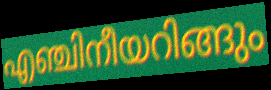
എഞ്ചിനീയറിങ്ങും